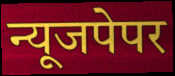
न्‍यूजपेपर